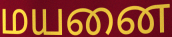
மயனை